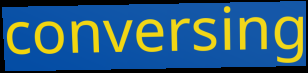
conversing